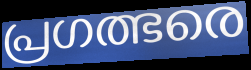
പ്രഗത്ഭരെ